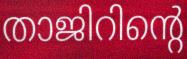
താജിറിന്റെ